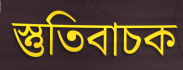
স্তুতিবাচক